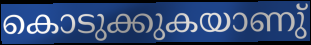
കൊടുക്കുകയാണു്